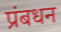
प्रंबधन